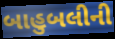
બાહુબલીની